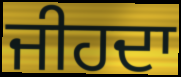
ਜੀਹਦਾ